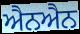
ਐਨਐਨ